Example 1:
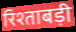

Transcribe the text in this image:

रिश्ताबड़ी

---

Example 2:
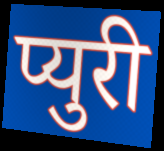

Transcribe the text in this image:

प्युरी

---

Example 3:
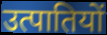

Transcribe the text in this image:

उत्पातियों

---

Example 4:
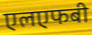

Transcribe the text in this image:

एलएफबी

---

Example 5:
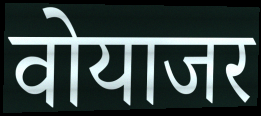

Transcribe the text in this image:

वोयाजर